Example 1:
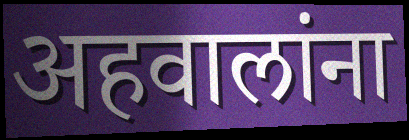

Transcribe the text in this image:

अहवालांना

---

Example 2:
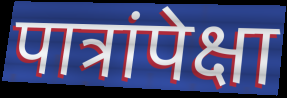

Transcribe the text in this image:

पात्रांपेक्षा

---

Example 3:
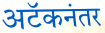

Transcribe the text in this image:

अटॅकनंतर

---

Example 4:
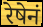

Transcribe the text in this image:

रेषेनं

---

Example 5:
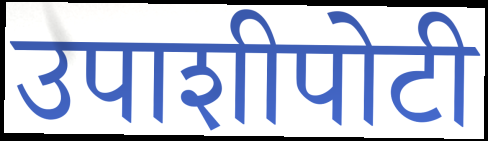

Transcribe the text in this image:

उपाशीपोटी